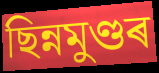
ছিন্নমুণ্ডৰ